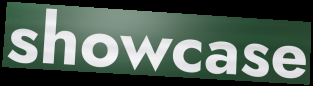
showcase